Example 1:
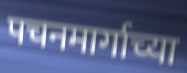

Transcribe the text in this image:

पचनमार्गाच्या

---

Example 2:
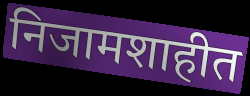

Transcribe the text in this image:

निजामशाहीत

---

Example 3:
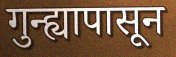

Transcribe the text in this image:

गुन्ह्यापासून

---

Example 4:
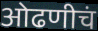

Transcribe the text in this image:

ओढणीचं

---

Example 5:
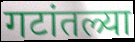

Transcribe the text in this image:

गटांतल्या